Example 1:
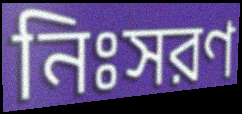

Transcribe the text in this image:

নিঃসরণ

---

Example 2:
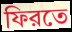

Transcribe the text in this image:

ফিরতে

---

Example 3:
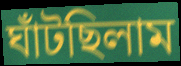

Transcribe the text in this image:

ঘাঁটছিলাম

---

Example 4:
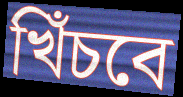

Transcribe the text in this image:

খিঁচবে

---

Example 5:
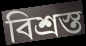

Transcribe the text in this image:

বিশ্রস্ত